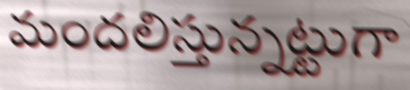
మందలిస్తున్నట్టుగా